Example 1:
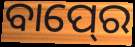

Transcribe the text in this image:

ବାପ୍‍ରେ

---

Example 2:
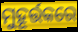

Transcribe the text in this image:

ମୁହୂର୍ତ୍ତକରେ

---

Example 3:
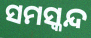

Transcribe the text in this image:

ସମସ୍କନ୍ଦ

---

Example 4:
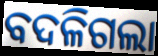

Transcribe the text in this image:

ବଦଳିଗଲା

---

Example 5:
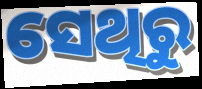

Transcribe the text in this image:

ସେଥିରୁ